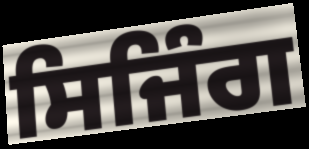
ਸਿਜਿੰਗ